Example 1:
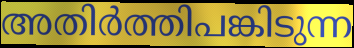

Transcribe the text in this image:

അതിർത്തിപങ്കിടുന്ന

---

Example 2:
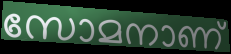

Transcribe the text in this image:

സോമനാണ്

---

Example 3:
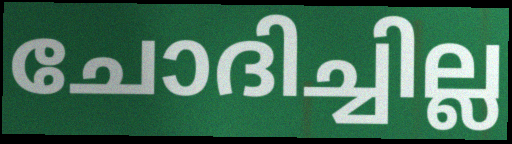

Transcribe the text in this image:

ചോദിച്ചില്ല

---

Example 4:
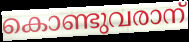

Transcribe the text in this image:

കൊണ്ടുവരാന്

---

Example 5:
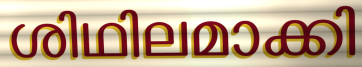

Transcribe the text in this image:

ശിഥിലമാക്കി